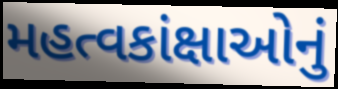
મહત્વકાંક્ષાઓનું